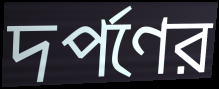
দর্পণের